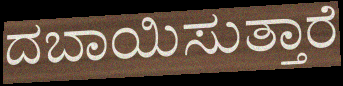
ದಬಾಯಿಸುತ್ತಾರೆ